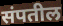
संपतील